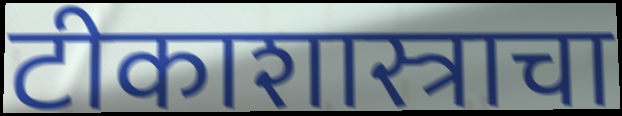
टीकाशास्त्राचा